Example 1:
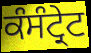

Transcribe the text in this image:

ਕੰਸੰਟ੍ਰੇਟ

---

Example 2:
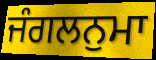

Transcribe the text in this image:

ਜੰਗਲਨੁਮਾ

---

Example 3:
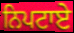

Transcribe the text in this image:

ਨਿਪਟਾਏ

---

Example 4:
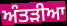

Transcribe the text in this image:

ਅੰਤੜੀਆ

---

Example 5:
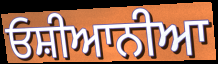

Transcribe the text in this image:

ਓਸ਼ੀਆਨੀਆ